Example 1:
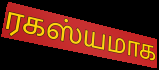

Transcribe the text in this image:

ரகஸ்யமாக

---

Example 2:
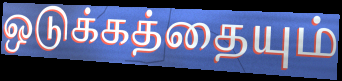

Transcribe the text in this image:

ஒடுக்கத்தையும்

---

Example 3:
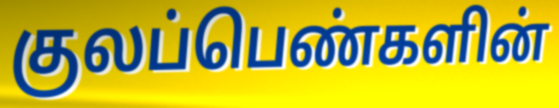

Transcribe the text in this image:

குலப்பெண்களின்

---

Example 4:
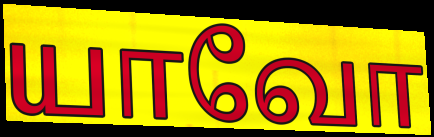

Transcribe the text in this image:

யாவோ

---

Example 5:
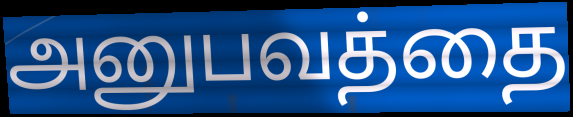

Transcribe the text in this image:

அனுபவத்தை